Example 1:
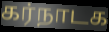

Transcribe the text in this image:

கர்நாடக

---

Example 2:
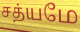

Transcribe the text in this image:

சத்யமே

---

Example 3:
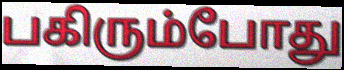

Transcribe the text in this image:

பகிரும்போது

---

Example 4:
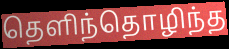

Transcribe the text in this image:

தெளிந்தொழிந்த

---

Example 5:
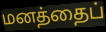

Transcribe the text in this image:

மனத்தைப்